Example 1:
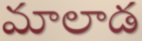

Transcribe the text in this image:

మాలాడ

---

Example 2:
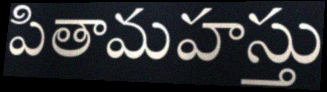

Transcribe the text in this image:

పితామహస్తు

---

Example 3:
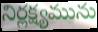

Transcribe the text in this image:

నిర్లక్ష్యమును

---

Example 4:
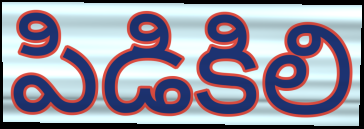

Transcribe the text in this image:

పిడికిలి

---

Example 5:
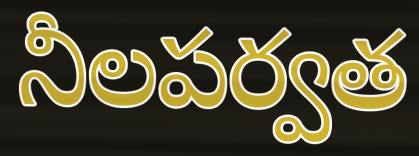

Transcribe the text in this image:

నీలపర్వత